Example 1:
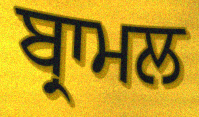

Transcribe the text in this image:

ਬ੍ਰਾਮਲ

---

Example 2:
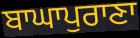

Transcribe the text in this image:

ਬਾਘਾਪੁਰਾਣਾ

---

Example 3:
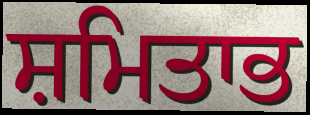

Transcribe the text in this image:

ਸ਼ਮਿਤਾਭ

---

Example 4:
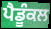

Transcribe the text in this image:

ਪੈਡੂੰਕਲ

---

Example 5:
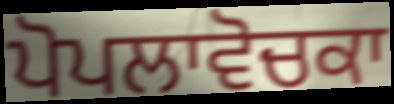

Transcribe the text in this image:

ਪੋਪਲਾਵੋਚਕਾ